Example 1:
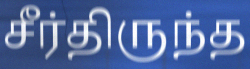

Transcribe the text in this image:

சீர்திருந்த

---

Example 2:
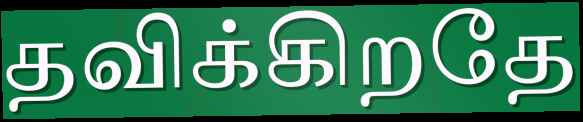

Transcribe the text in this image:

தவிக்கிறதே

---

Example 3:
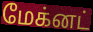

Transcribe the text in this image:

மேக்னட்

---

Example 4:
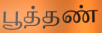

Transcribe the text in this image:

பூத்தண்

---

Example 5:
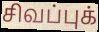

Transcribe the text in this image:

சிவப்புக்